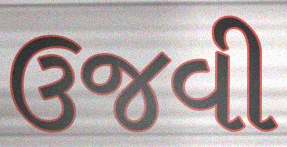
ઉજવી